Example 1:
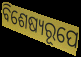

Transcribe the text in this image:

ବିଶେଷ୍ୟରୂପେ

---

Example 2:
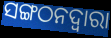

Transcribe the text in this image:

ସଙ୍ଗଠନଦ୍ୱାରା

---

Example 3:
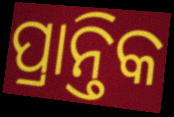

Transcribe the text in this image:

ପ୍ରାନ୍ତିକ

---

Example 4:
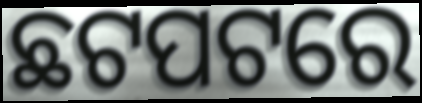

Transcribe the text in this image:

ଛଟପଟରେ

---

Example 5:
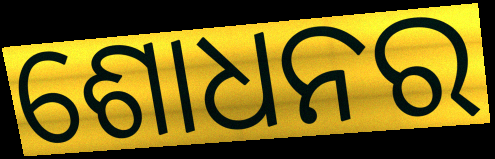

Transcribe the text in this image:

ଶୋଧନର